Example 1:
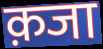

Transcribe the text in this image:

क़जा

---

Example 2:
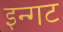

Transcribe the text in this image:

इन्गट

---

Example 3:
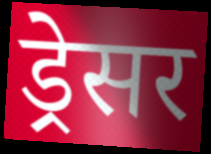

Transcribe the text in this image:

ड्रेसर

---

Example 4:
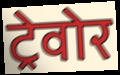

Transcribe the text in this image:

ट्रेवोर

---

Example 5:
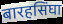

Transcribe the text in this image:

बारहसिंघा